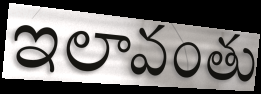
ఇలావంతు